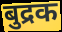
बुद्रक